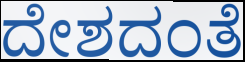
ದೇಶದಂತೆ